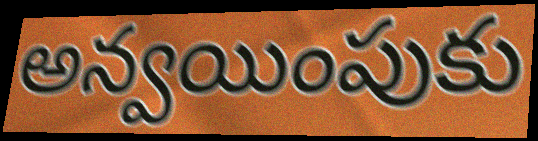
అన్వయింపుకు